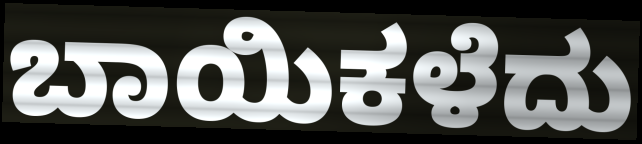
ಬಾಯಿಕಳೆದು